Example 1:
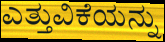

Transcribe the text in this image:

ಎತ್ತುವಿಕೆಯನ್ನು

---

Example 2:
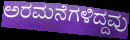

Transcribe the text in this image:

ಅರಮನೆಗಳಿದ್ದವು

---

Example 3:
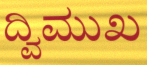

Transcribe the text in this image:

ದ್ವಿಮುಖ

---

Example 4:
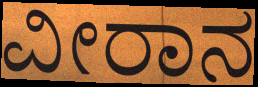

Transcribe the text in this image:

ವೀರಾನ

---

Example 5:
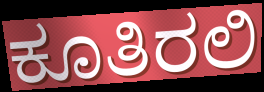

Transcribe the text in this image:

ಕೂತಿರಲಿ